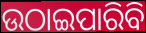
ଉଠାଇପାରିବି